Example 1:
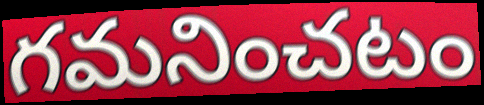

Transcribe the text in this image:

గమనించటం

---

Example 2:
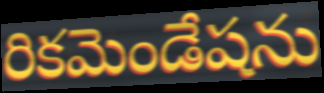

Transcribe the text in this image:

రికమెండేషను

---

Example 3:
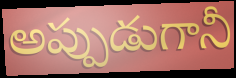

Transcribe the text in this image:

అప్పుడుగానీ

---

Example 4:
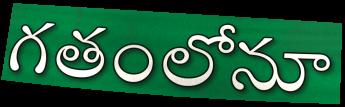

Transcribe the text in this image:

గతంలోనూ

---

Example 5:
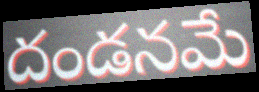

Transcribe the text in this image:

దండనమే